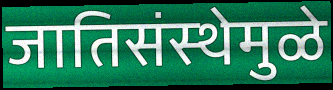
जातिसंस्थेमुळे